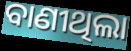
ବାଣୀଥିଲା